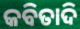
କବିତାଦି